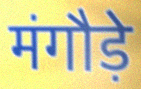
मंगौड़े